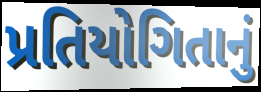
પ્રતિયોગિતાનું